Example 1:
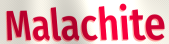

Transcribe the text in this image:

Malachite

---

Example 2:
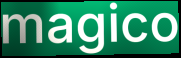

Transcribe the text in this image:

magico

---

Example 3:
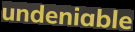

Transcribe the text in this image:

undeniable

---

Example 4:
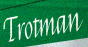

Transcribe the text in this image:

Trotman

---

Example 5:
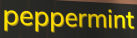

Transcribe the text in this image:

peppermint